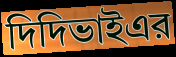
দিদিভাইএর